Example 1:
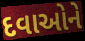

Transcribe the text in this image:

દવાઓને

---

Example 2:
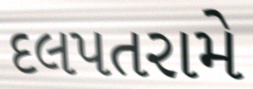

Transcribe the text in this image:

દલપતરામે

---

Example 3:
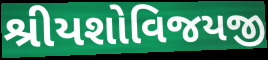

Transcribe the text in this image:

શ્રીયશોવિજયજી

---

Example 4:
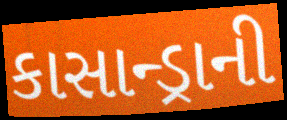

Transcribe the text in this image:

કાસાન્ડ્રાની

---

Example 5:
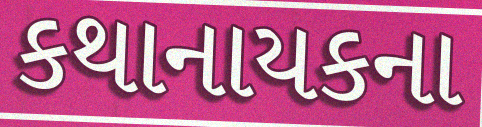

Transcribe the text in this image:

કથાનાયકના